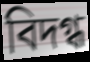
বিদগ্ধ